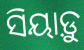
ସିୟାଡ଼ୁ